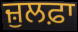
ਜ਼ੁਲਫ਼ਾ